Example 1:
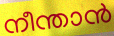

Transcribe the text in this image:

നീന്താൻ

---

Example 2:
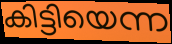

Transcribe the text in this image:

കിട്ടിയെന്ന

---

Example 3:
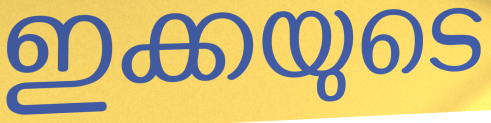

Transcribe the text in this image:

ഇക്കയുടെ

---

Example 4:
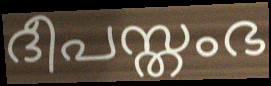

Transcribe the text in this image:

ദീപസ്തംഭ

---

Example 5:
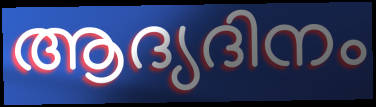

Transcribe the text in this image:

ആദ്യദിനം